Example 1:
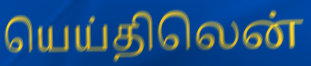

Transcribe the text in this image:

யெய்திலென்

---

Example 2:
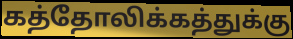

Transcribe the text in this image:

கத்தோலிக்கத்துக்கு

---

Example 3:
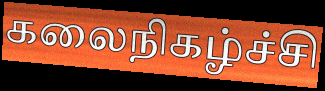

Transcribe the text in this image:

கலைநிகழ்ச்சி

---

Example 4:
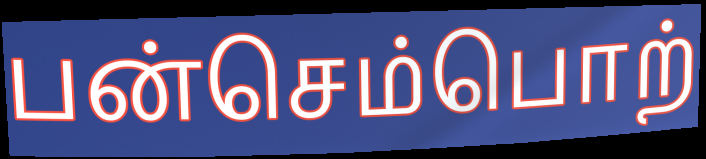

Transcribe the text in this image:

பன்செம்பொற்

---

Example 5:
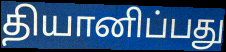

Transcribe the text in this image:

தியானிப்பது